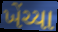
ખેંચ્યા